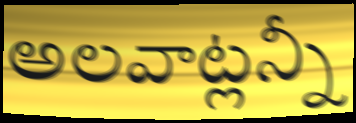
అలవాట్లన్నీ